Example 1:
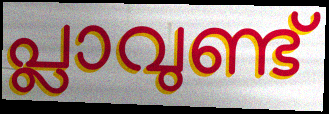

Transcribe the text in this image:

പ്ലാവുണ്ട്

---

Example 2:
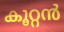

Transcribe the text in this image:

കൂറ്റൻ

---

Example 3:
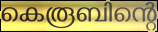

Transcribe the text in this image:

കെരൂബിന്റെ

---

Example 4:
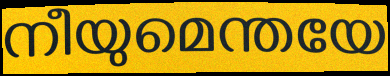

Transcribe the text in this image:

നീയുമെന്തയേ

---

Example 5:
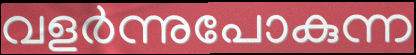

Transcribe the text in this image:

വളർന്നുപോകുന്ന